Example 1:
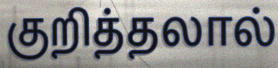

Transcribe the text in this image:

குறித்தலால்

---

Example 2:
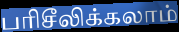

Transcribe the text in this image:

பரிசீலிக்கலாம்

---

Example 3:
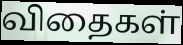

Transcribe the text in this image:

விதைகள்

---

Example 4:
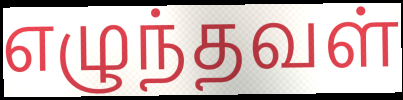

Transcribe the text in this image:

எழுந்தவள்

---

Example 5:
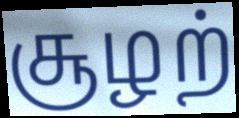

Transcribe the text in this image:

சூழற்